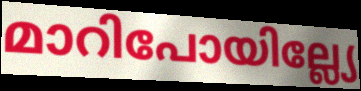
മാറിപോയില്ല്യേ